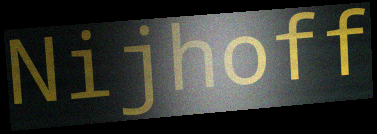
Nijhoff